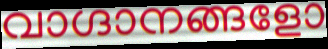
വാഗ്ദാനങ്ങളോ